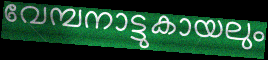
വേമ്പനാട്ടുകായലും